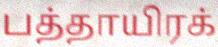
பத்தாயிரக்